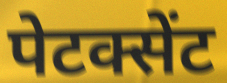
पेटक्सेंट